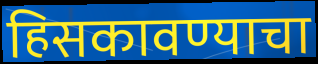
हिसकावण्याचा